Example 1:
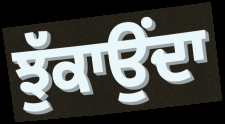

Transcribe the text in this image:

ਝੁੱਕਾਉਂਦਾ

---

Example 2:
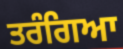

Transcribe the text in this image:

ਤਰੰਗਿਆ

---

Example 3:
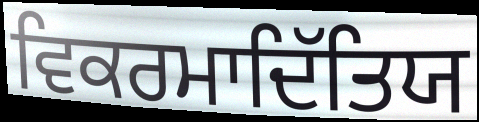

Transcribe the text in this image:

ਵਿਕਰਮਾਦਿੱਤਿਯ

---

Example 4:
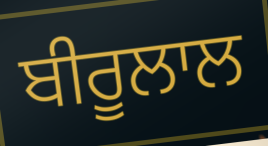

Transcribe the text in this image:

ਬੀਰੂਲਾਲ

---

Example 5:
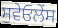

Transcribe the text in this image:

ਸੁਵੇਓਲੇਂਸ